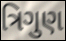
ત્રિગુણ